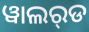
ୱାଲର୍‌ଡ